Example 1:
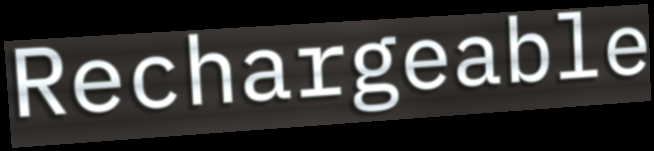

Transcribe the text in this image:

Rechargeable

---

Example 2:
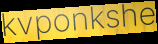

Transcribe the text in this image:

kvponkshe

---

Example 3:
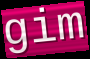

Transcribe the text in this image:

gim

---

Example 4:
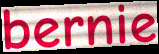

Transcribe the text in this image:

bernie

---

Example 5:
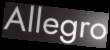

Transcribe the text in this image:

Allegro